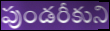
పుండరీకుని